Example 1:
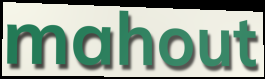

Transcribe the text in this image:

mahout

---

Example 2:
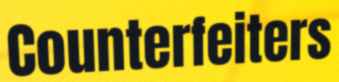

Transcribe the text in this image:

Counterfeiters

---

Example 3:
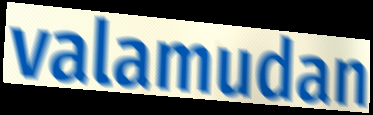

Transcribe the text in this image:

valamudan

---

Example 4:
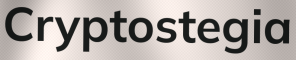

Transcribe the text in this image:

Cryptostegia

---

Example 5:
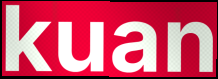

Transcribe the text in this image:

kuan